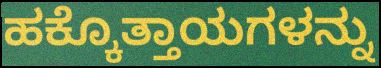
ಹಕ್ಕೊತ್ತಾಯಗಳನ್ನು